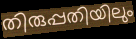
തിരുപ്പതിയിലും